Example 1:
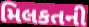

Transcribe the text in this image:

મિલકતની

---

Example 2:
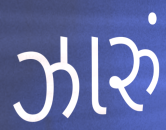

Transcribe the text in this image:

ઝારું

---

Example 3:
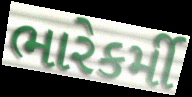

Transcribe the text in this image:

ભારેકર્મી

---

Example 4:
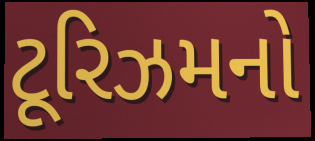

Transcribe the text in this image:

ટૂરિઝમનો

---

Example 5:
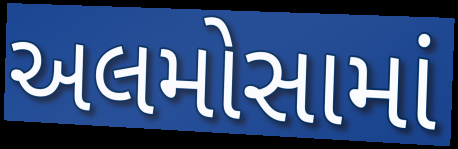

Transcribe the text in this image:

અલમોસામાં